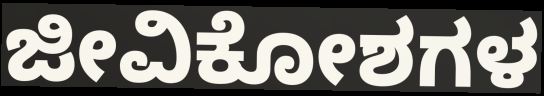
ಜೀವಿಕೋಶಗಳ